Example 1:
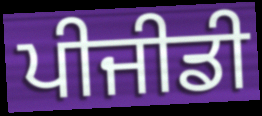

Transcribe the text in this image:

ਪੀਜੀਡੀ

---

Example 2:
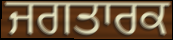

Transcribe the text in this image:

ਜਗਤਾਰਕ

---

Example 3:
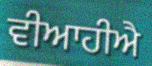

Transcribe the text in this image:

ਵੀਆਹੀਐ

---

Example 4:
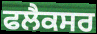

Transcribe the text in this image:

ਫਲੈਕਸਰ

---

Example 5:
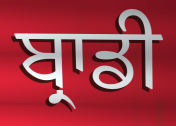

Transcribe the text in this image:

ਬ੍ਰਾਡੀ